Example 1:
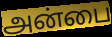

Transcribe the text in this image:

அன்பை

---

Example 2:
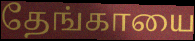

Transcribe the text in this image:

தேங்காயை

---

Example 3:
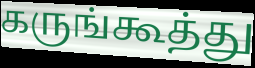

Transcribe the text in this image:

கருங்கூத்து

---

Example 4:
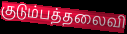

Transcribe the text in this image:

குடும்பத்தலைவி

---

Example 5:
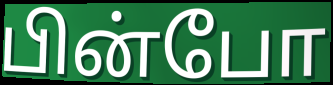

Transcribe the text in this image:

பின்போ